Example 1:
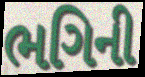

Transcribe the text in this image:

ભગિની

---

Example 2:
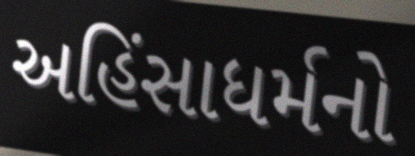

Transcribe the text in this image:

અહિંસાધર્મનો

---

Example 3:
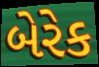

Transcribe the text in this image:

બેરેક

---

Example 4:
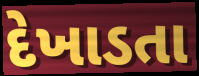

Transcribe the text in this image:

દેખાડતા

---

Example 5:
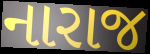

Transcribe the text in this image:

નારાજ